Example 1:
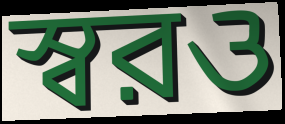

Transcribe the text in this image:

স্বরও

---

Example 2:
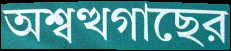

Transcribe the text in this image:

অশ্বত্থগাছের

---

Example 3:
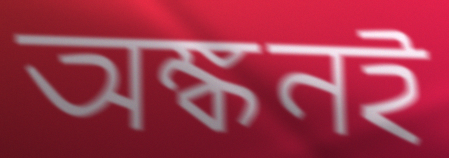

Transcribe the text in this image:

অঙ্কনই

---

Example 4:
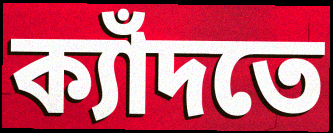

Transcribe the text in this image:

ক্যাঁদতে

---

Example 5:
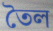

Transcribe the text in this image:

তৈল